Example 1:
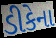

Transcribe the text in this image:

ડીકેના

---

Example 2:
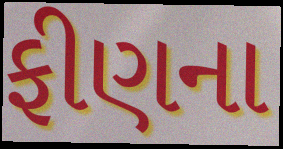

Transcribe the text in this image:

ફીણના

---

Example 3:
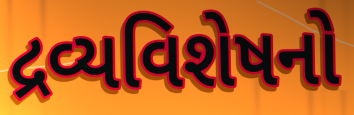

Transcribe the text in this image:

દ્રવ્યવિશેષનો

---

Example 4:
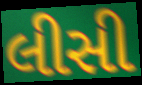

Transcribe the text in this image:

લીસી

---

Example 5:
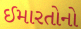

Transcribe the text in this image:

ઈમારતોનો